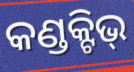
କଣ୍ଡକ୍ଟିଭ୍